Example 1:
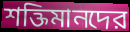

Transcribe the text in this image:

শক্তিমানদের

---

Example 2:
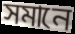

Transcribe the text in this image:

সমানে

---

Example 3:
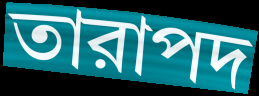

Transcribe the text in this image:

তারাপদ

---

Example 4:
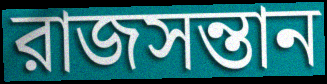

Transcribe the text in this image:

রাজসন্তান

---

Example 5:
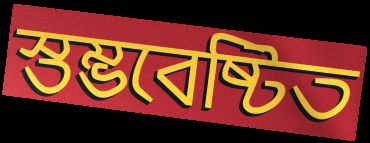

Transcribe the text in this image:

স্তম্ভবেষ্টিত